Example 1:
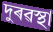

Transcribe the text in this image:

দুৰৱস্থা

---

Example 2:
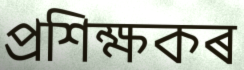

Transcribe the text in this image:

প্ৰশিক্ষকৰ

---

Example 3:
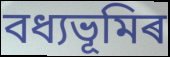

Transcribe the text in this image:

বধ্যভূমিৰ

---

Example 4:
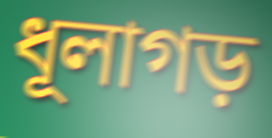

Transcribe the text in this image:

ধূলাগড়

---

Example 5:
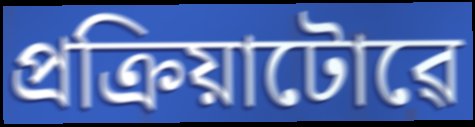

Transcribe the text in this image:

প্ৰক্ৰিয়াটোৱে